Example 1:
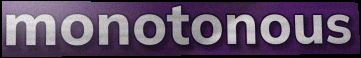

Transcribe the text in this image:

monotonous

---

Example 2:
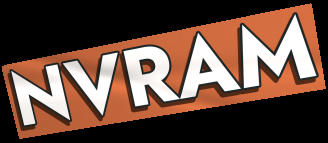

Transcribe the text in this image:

NVRAM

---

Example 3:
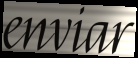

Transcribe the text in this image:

enviar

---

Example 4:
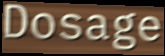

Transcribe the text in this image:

Dosage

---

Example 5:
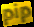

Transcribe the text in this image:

pip